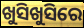
ଖୁସିଖୁସିରେ